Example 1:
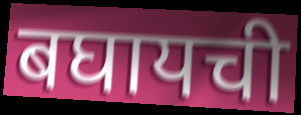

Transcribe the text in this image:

बघायची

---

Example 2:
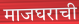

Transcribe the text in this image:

माजघराची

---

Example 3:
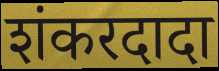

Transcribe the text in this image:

शंकरदादा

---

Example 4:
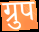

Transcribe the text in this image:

ग्रुप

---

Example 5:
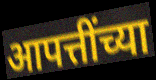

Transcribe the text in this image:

आपत्तींच्या